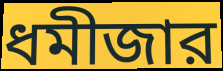
ধমীজার